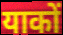
याकों